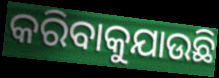
କରିବାକୁଯାଉଛି